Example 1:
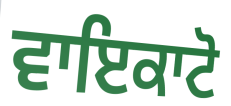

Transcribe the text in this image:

ਵਾਇਕਾਟੋ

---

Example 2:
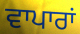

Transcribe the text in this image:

ਵਾਪਾਰਾਂ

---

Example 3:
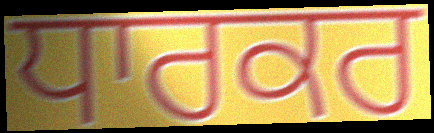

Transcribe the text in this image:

ਧਾਰਕਰ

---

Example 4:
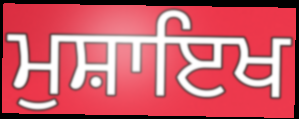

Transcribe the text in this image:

ਮੁਸ਼ਾਇਖ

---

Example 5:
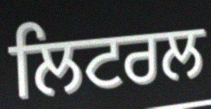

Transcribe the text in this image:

ਲਿਟਰਲ